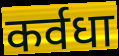
कर्वधा